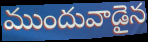
ముందువాడైన